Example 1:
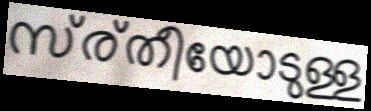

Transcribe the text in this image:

സ്ര്തീയോടുള്ള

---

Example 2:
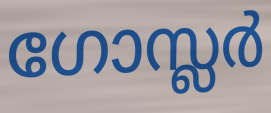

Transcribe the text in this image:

ഗോസ്ലർ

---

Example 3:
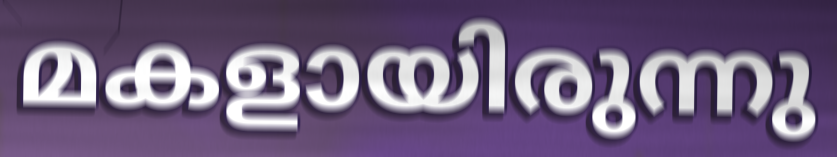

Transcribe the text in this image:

മകളായിരുന്നു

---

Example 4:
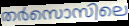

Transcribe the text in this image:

തർസൊസിലെ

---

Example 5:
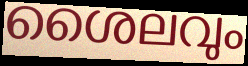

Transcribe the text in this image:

ശൈലവും